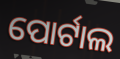
ପୋର୍ଟାଲ